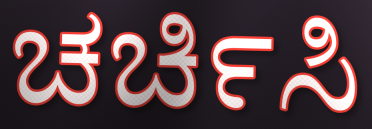
ಚರ್ಚಿಸಿ